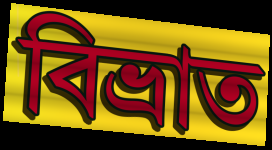
বিভ্ৰাত